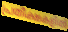
പ്രതീക്ഷകളിൽ